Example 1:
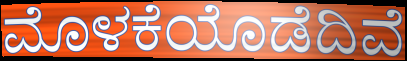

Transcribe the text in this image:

ಮೊಳಕೆಯೊಡೆದಿವೆ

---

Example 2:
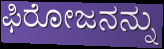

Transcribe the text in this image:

ಫಿರೋಜನನ್ನು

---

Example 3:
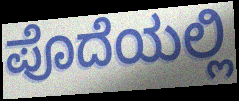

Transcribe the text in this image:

ಪೊದೆಯಲ್ಲಿ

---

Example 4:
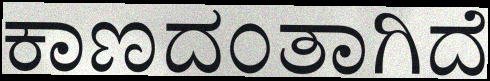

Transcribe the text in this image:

ಕಾಣದಂತಾಗಿದೆ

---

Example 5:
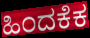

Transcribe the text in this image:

ಹಿಂದಕೆಕ